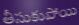
తీసుకుపోయి